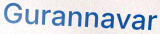
Gurannavar